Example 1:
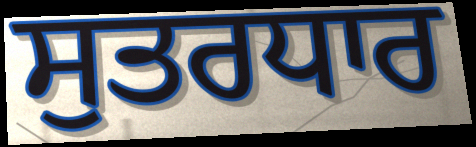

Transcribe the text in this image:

ਸੁਤਰਧਾਰ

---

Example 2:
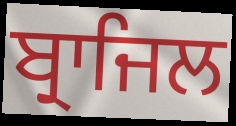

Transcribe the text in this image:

ਬ੍ਰਾਜਿਲ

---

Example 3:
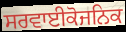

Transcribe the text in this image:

ਸਰਵਾਈਕੋਜਨਿਕ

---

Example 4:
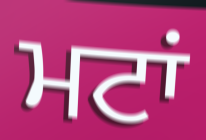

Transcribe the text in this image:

ਮਟਾਂ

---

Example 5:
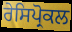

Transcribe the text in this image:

ਰੇਸਿਪ੍ਰੋਕਲ